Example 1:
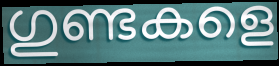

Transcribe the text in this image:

ഗുണ്ടകളെ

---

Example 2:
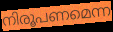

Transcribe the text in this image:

നിരൂപണമെന്ന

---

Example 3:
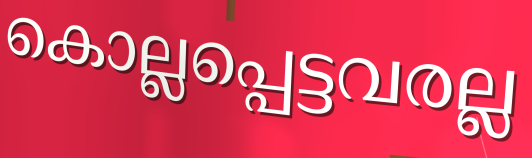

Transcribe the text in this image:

കൊല്ലപ്പെട്ടവരല്ല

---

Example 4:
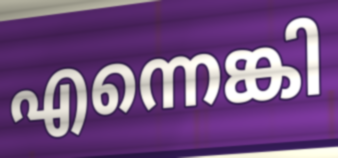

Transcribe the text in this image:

എന്നെങ്കി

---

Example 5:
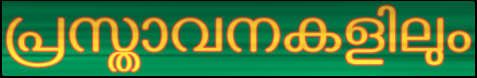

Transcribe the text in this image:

പ്രസ്താവനകളിലും